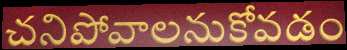
చనిపోవాలనుకోవడం